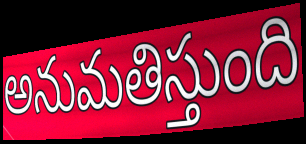
అనుమతిస్తుంది